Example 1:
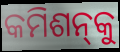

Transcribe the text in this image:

କମିଶନ୍‌କୁ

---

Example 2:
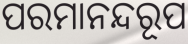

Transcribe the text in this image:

ପରମାନନ୍ଦରୂପ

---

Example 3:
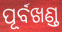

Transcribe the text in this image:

ପୂର୍ବଖଣ୍ଡ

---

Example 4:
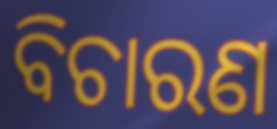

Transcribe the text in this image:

ବିଚାରଣ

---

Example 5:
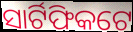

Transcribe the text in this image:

ସାର୍ଟିଫିକଟେ